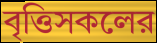
বৃত্তিসকলের